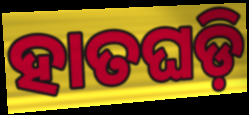
ହାତଘଡ଼ି